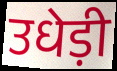
उधेड़ी